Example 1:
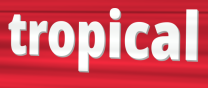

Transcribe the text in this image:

tropical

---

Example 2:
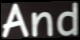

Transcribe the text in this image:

And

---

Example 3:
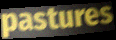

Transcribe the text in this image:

pastures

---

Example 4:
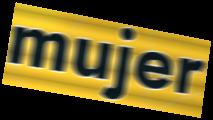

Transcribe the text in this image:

mujer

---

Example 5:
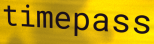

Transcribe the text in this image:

timepass